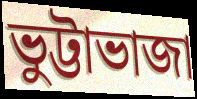
ভুট্টাভাজা